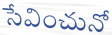
సేవించునో